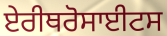
ਏਰੀਥਰੋਸਾਈਟਸ